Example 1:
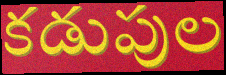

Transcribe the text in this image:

కడుపుల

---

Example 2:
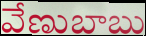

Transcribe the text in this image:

వేణుబాబు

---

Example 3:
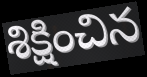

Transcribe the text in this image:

శిక్షించిన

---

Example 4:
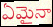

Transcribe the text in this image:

ఏమైనా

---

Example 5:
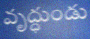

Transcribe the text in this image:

వృద్ధుండు